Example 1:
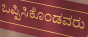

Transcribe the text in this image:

ಒಪ್ಪಿಸಿಕೊಂಡವರು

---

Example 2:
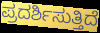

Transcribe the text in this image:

ಪ್ರದರ್ಶಿಸುತ್ತಿದೆ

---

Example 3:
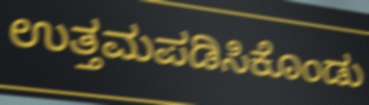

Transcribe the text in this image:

ಉತ್ತಮಪಡಿಸಿಕೊಂಡು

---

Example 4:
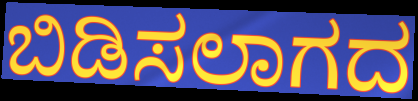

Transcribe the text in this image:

ಬಿಡಿಸಲಾಗದ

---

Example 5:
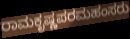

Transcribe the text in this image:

ರಾಮಕೃಷ್ಣಪರಮಹಂಸರು